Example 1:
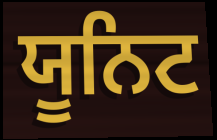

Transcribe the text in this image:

ਯੂਨਿਟ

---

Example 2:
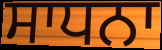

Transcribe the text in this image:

ਸਾਧਨਾ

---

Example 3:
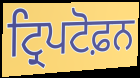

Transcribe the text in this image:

ਟ੍ਰਿਪਟੋਫ਼ਨ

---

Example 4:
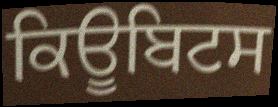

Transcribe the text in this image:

ਕਿਊਬਿਟਸ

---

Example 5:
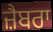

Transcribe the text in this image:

ਜ਼ੈਬਰਾ